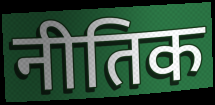
नीतिक